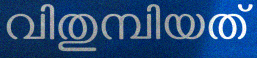
വിതുമ്പിയത്